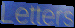
Letters